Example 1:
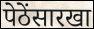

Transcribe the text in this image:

पेठेंसारखा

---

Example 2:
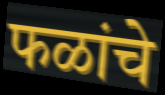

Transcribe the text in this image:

फळांचे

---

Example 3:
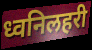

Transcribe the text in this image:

ध्वनिलहरी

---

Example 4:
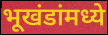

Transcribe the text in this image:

भूखंडांमध्ये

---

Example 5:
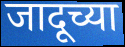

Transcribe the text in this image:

जादूच्या